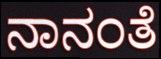
ನಾನಂತೆ